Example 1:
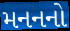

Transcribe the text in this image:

મનનનો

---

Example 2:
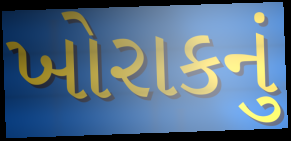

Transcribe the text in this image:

ખોરાકનું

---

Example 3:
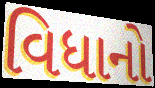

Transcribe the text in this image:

વિધાનો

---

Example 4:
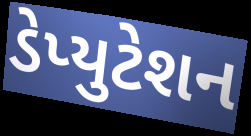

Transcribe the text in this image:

ડેપ્યુટેશન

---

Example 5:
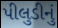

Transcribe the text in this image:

પીલુડીનું